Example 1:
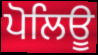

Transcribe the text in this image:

ਪੋਲਿਊ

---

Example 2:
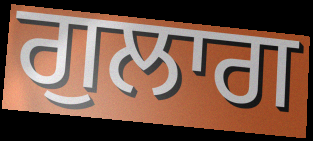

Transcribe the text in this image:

ਗੁਲਾਗ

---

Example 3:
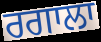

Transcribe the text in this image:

ਰਗਾਲਾ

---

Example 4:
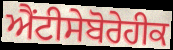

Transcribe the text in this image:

ਐਂਟੀਸੇਬੋਰੇਹੀਕ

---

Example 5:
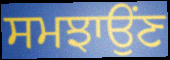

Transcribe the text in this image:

ਸਮਝਾਉਂਣ